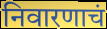
निवारणाचं